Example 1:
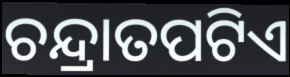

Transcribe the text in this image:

ଚନ୍ଦ୍ରାତପଟିଏ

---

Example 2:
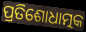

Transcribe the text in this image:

ପ୍ରତିଶୋଧାତ୍ମକ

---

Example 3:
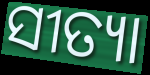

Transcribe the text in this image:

ସୀତ୍ୟା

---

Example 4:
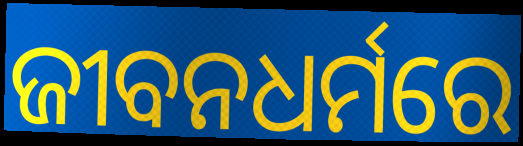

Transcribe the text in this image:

ଜୀବନଧର୍ମରେ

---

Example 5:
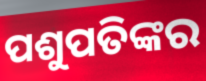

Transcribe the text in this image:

ପଶୁପତିଙ୍କର